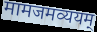
मामजमव्ययम्